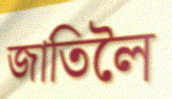
জাতিলৈ